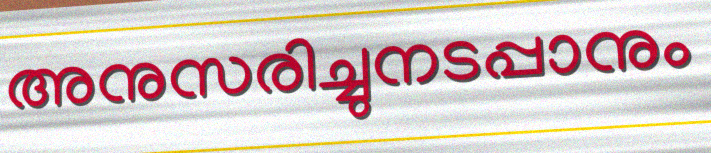
അനുസരിച്ചുനടപ്പാനും